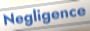
Negligence